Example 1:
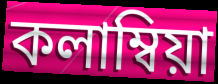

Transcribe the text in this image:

কলাম্বিয়া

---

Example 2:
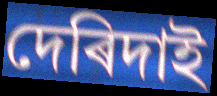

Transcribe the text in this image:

দেৰিদাই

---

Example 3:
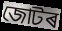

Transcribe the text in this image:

জোটৰ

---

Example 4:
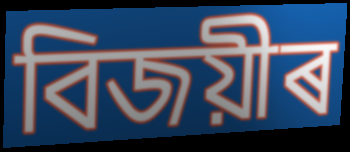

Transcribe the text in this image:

বিজয়ীৰ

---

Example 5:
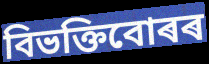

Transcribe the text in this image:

বিভক্তিবোৰৰ